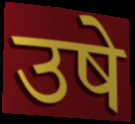
उषे